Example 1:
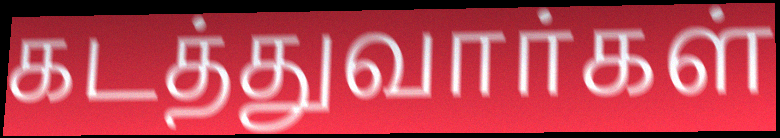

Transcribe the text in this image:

கடத்துவார்கள்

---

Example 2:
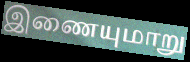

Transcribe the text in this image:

இணையுமாறு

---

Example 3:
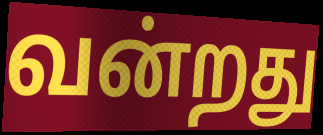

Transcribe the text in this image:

வன்றது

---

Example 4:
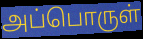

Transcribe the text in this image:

அப்பொருள்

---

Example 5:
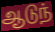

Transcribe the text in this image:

ஆடுந்